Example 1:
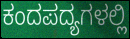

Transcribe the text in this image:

ಕಂದಪದ್ಯಗಳಲ್ಲಿ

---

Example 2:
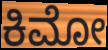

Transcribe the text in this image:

ಕಿಮೋ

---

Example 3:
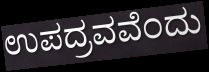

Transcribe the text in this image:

ಉಪದ್ರವವೆಂದು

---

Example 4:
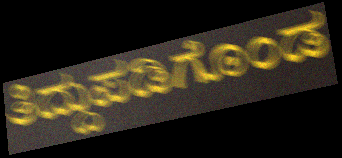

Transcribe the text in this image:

ತಿದ್ದುಪಡಿಗೊಂಡ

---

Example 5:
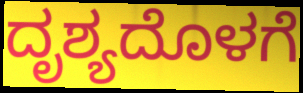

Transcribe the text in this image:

ದೃಶ್ಯದೊಳಗೆ